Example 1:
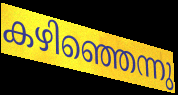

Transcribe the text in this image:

കഴിഞ്ഞെന്നു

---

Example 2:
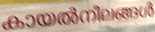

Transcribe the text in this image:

കായൽനിലങ്ങൾ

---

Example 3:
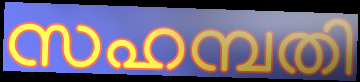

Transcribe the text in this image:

സഹമ്പതി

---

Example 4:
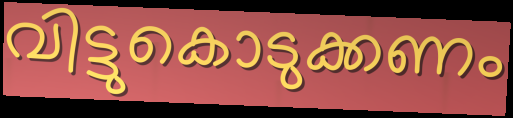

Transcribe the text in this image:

വിട്ടുകൊടുക്കണം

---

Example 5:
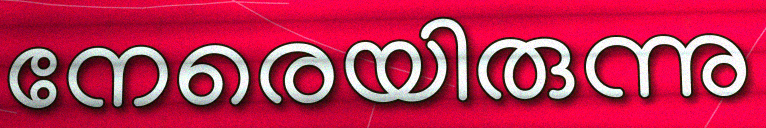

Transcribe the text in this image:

നേരെയിരുന്നു